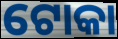
ଟୋକା